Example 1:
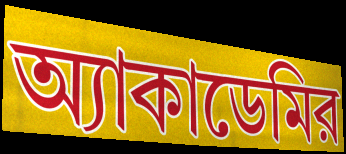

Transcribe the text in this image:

অ্যাকাডেমির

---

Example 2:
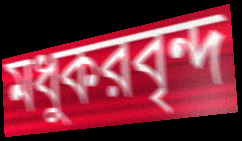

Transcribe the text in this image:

মধুকরবৃন্দ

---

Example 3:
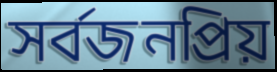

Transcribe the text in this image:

সর্বজনপ্রিয়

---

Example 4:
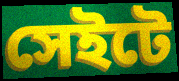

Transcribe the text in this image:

সেইটে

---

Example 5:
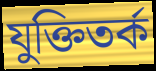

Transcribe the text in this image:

যুক্তিতর্ক